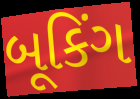
બૂકિંગ